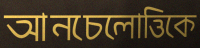
আনচেলোত্তিকে